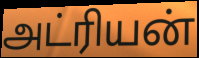
அட்ரியன்